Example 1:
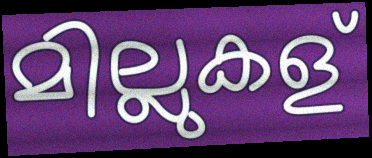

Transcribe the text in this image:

മില്ലുകള്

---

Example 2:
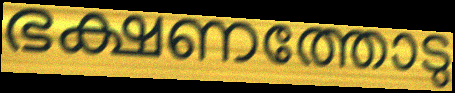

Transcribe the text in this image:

ഭക്ഷണത്തോടു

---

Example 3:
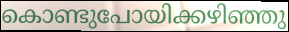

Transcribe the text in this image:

കൊണ്ടുപോയിക്കഴിഞ്ഞു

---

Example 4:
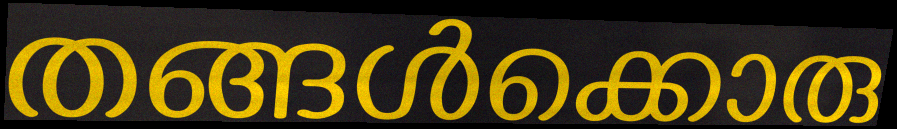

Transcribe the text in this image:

തങ്ങൾക്കൊരു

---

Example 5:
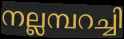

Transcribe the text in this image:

നല്ലമ്പറച്ചി